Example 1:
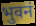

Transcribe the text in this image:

भुवनं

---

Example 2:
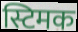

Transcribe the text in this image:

स्टिमक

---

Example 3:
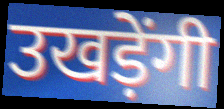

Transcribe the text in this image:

उखड़ेंगी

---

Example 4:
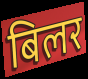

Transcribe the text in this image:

बिलर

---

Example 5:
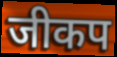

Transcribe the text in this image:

जीकप